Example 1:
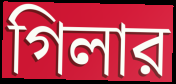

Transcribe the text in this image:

গিলার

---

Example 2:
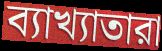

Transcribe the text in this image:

ব্যাখ্যাতারা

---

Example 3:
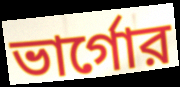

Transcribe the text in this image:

ভার্গোর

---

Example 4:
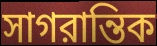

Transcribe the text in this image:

সাগরান্তিক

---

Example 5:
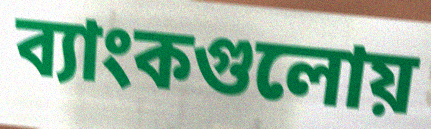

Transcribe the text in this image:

ব্যাংকগুলোয়